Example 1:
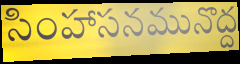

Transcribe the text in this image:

సింహాసనమునొద్ద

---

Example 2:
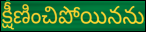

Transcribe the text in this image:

క్షీణించిపోయినను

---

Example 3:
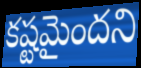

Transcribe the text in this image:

కష్టమైందని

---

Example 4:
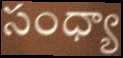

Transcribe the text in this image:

సంధ్యా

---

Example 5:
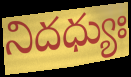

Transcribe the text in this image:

నిదధ్యుః